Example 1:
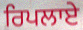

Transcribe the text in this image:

ਰਿਪਲਾਏ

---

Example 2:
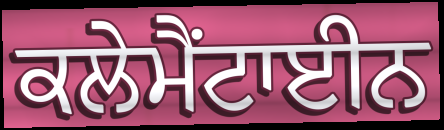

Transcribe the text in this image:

ਕਲੇਮੈਂਟਾਈਨ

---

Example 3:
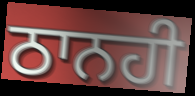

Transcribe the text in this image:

ਠਾਨਹੀ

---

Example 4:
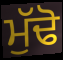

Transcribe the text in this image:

ਮੁੱਢੋ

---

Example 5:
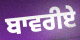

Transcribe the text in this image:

ਬਾਵਰੀਏ